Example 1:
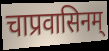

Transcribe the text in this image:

चाप्रवासिनम्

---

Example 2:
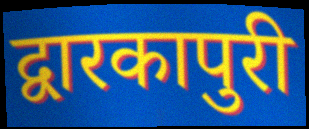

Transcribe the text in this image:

द्वारकापुरी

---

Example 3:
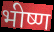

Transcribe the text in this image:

भीष्ण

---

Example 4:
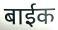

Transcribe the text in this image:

बाईक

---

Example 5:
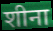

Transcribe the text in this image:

शीना